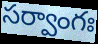
సర్వాంగః